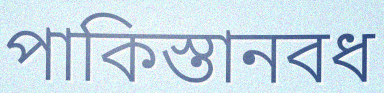
পাকিস্তানবধ